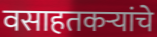
वसाहतकऱ्यांचे